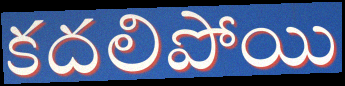
కదలిపోయి